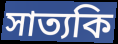
সাত্যকি